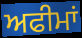
ਅਫੀਮਾਂ